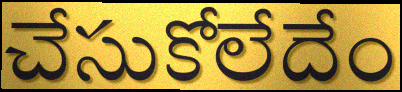
చేసుకోలేదేం